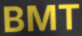
BMT